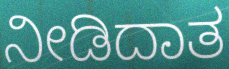
ನೀಡಿದಾತ